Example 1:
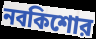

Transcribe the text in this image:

নবকিশোর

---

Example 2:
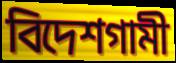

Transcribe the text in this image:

বিদেশগামী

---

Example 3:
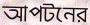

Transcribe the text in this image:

আপটনের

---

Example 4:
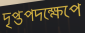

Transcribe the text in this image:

দৃপ্তপদক্ষেপে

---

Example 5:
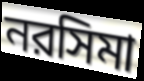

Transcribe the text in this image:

নরসিমা